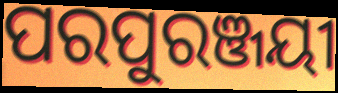
ପରପୁରଞ୍ଜୟୀ